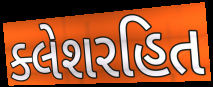
ક્લેશરહિત